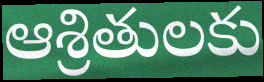
ఆశ్రితులకు